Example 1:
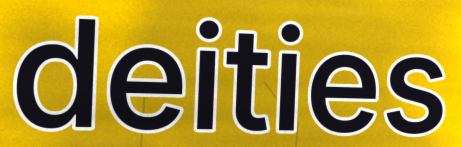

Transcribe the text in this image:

deities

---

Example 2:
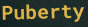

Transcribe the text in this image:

Puberty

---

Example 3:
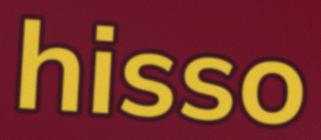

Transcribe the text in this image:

hisso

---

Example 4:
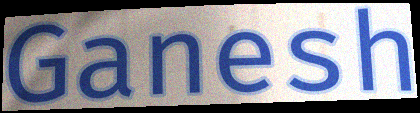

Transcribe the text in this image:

Ganesh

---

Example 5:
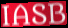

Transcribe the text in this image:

IASB